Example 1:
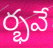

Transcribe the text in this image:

ర్భవే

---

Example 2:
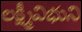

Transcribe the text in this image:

లక్ష్మీవిభుని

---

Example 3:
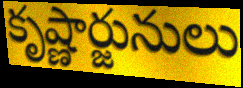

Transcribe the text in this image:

కృష్ణార్జునులు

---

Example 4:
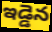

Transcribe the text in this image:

ఇడ్డెన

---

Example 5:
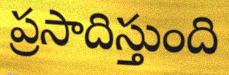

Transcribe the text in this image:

ప్రసాదిస్తుంది